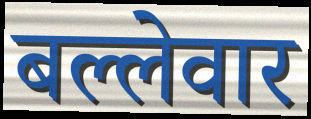
बल्लेवार